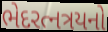
ભેદરત્નત્રયનો